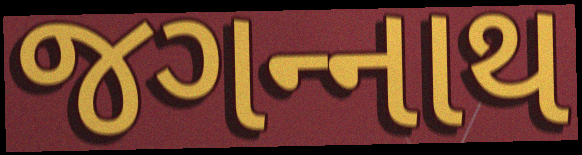
જગન્‍નાથ